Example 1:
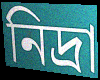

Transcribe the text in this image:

নিদ্ৰা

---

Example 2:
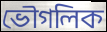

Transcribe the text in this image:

ভৌগলিক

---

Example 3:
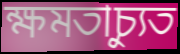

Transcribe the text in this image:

ক্ষমতাচ্যুত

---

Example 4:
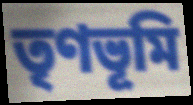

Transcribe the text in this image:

তৃণভূমি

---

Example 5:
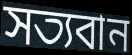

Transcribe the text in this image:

সত্যবান